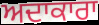
ਅਦਾਕਾਰਾ